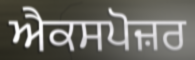
ਐਕਸਪੋਜ਼ਰ